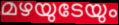
മഴയുടേയും